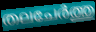
തലചേർത്തു